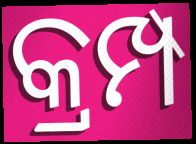
କ୍ରମ୍ପ